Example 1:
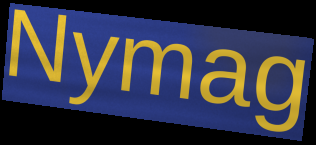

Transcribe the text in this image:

Nymag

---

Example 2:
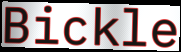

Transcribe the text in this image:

Bickle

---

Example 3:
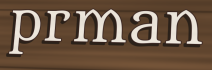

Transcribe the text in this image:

prman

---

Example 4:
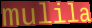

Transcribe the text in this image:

mulila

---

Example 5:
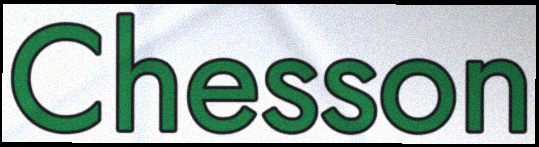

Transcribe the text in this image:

Chesson